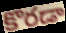
కొరడా